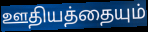
ஊதியத்தையும்